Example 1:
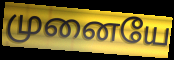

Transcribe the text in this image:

முனையே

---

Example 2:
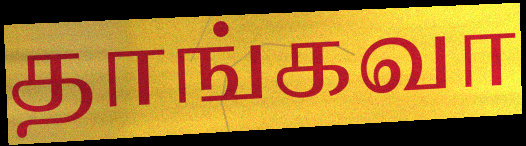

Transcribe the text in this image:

தாங்கவா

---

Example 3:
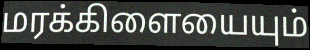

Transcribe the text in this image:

மரக்கிளையையும்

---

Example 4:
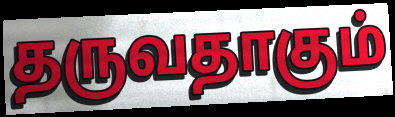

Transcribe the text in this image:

தருவதாகும்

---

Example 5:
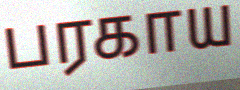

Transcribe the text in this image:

பரகாய